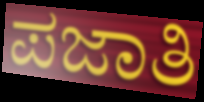
ಪಜಾತಿ